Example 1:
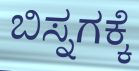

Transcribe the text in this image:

ಬಿಸ್ನಗಕ್ಕೆ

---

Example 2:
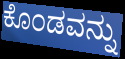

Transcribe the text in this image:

ಕೊಂಡವನ್ನು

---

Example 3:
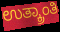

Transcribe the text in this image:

ಉತ್ಕ್ರಾಂತಿ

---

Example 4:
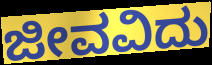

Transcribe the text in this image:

ಜೀವವಿದು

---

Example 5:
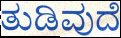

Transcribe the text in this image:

ತುಡಿವುದೆ